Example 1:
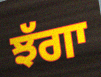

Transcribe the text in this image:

ਝੱਗਾ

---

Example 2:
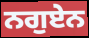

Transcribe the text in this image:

ਨਗੁਏਨ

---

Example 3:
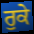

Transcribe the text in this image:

ਰੁਕੇ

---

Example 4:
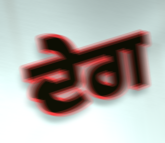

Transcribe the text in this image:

ਦੇਗ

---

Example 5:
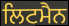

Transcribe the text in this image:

ਲਿਟਮੈਨ